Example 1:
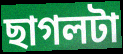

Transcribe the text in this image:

ছাগলটা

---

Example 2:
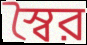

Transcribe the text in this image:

স্বৈর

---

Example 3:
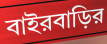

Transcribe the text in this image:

বাইরবাড়ির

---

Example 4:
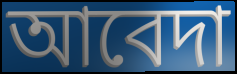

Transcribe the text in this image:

আবেদা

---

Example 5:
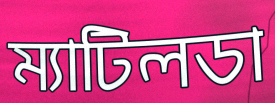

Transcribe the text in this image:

ম্যাটিলডা